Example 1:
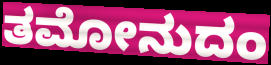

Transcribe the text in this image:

ತಮೋನುದಂ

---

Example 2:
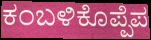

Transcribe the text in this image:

ಕಂಬಳಿಕೊಪ್ಪೆಪ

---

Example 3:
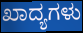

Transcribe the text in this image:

ಖಾದ್ಯಗಳು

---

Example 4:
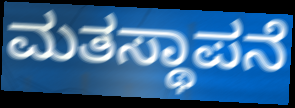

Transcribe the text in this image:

ಮತಸ್ಥಾಪನೆ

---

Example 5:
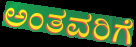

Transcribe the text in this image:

ಅಂತವರಿಗೆ